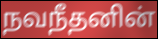
நவநீதனின்